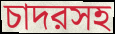
চাদরসহ